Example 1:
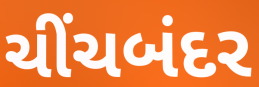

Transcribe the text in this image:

ચીંચબંદર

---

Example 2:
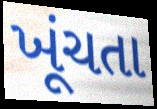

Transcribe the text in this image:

ખૂંચતા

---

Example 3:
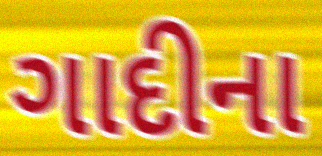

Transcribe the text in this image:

ગાદીના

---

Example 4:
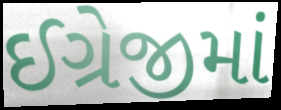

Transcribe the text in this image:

ઈગ્રેજીમાં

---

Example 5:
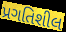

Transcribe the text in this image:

પ્રગતિશીલ